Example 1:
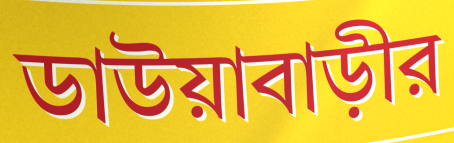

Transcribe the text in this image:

ডাউয়াবাড়ীর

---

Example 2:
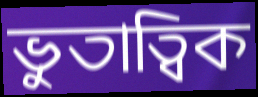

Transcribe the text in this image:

ভুতাত্বিক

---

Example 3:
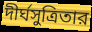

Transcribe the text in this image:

দীর্ঘসুত্রিতার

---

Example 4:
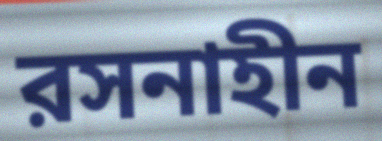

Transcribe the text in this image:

রসনাহীন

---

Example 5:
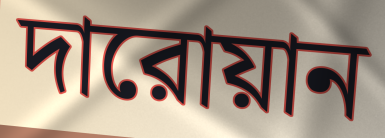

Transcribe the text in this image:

দারোয়ান